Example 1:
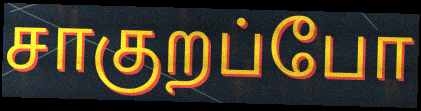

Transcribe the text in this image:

சாகுறப்போ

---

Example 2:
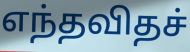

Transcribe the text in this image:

எந்தவிதச்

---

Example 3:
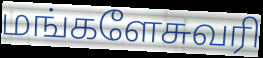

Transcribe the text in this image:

மங்களேசுவரி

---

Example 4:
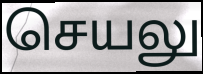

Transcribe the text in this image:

செயலு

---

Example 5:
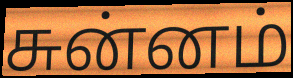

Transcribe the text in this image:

சுன்னம்